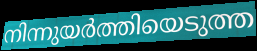
നിന്നുയർത്തിയെടുത്ത